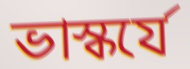
ভাস্কর্যে